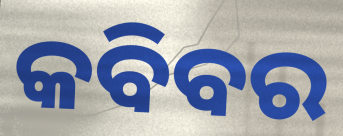
କବିବର